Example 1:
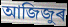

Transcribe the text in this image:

আজিজুৰ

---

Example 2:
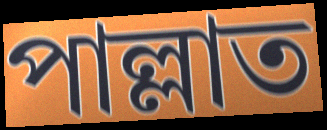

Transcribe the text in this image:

পাল্লাত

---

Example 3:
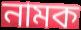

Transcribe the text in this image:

নামক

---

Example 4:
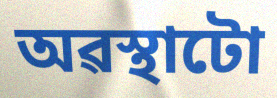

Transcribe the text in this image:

অৱস্থাটো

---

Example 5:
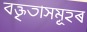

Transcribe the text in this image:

বক্তৃতাসমূহৰ